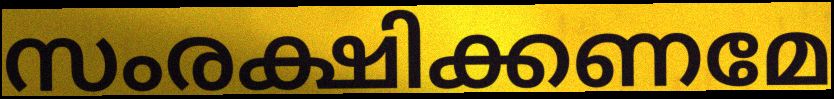
സംരക്ഷിക്കണമേ